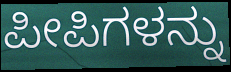
ಪೀಪಿಗಳನ್ನು